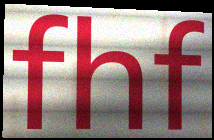
fhf